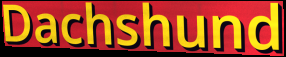
Dachshund